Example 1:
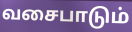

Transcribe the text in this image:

வசைபாடும்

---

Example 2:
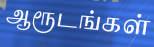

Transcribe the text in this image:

ஆரூடங்கள்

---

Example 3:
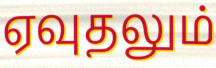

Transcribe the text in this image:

ஏவுதலும்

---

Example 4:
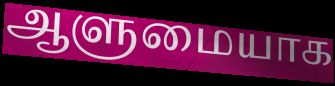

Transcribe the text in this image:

ஆளுமையாக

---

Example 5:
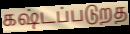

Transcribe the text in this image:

கஷ்டப்படுறத